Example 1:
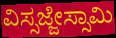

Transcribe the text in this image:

ವಿಸ್ಸಜ್ಜೇಸ್ಸಾಮಿ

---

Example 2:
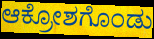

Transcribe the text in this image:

ಆಕ್ರೋಶಗೊಂಡು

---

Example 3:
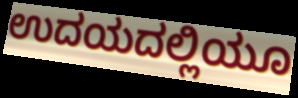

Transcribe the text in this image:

ಉದಯದಲ್ಲಿಯೂ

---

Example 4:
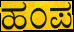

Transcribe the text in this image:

ಹಂಪ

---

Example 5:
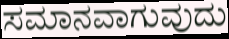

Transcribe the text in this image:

ಸಮಾನವಾಗುವುದು